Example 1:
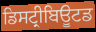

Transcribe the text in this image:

ਡਿਸਟ੍ਰੀਬਿਊਟਡ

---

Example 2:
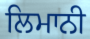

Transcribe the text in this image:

ਲਿਮਾਨੀ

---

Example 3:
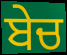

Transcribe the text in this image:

ਬੇਚ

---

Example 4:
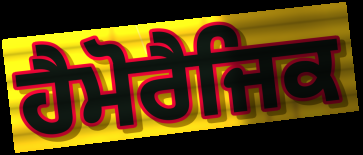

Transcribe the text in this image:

ਹੈਮੋਰੈਜਿਕ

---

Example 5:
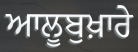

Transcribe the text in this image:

ਆਲੂਬੁਖ਼ਾਰੇ